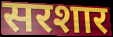
सरशार